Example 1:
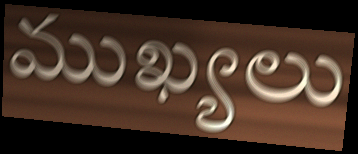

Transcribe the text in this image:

ముఖ్యలు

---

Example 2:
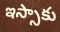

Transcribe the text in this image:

ఇస్సాకు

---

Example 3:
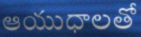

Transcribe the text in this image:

ఆయుధాలతో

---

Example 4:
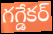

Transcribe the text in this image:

గగ్డేకర్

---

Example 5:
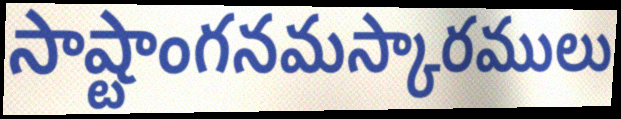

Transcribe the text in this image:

సాష్టాంగనమస్కారములు